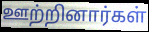
ஊற்றினார்கள்